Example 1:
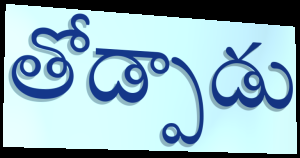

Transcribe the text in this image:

తోడ్పాడు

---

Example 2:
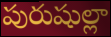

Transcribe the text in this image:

పురుషుల్లా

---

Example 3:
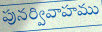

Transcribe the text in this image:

పునర్వివాహము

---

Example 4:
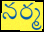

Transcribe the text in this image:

నర్మ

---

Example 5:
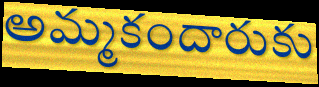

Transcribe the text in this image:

అమ్మకందారుకు